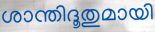
ശാന്തിദൂതുമായി